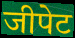
जीपेट